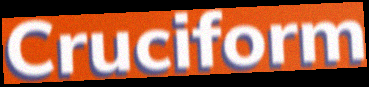
Cruciform